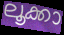
ലൂക്കാ